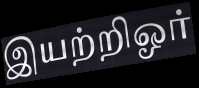
இயற்றிஓர்